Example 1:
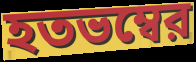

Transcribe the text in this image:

হতভম্বের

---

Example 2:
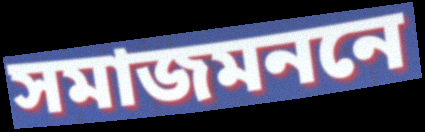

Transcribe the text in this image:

সমাজমননে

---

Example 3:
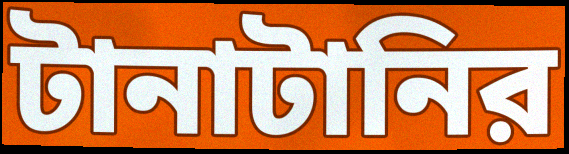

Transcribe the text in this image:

টানাটানির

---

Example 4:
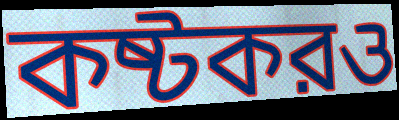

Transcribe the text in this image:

কষ্টকরও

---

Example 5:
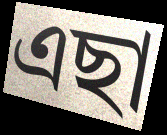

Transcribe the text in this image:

এছা